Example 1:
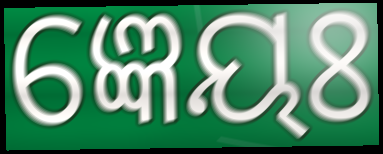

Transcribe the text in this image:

ଜ୍ଞେୟଃ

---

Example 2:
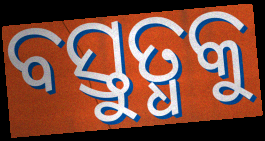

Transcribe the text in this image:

ବସ୍ତୁତ୍ଧକୁ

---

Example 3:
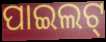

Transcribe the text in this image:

ପାଇଲଟ୍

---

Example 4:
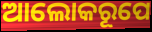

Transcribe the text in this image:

ଆଲୋକରୂପେ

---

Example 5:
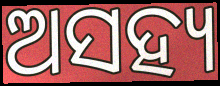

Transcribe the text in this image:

ଅସହ୍ଯ